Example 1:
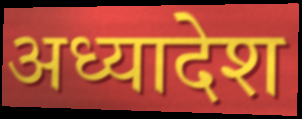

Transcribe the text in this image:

अध्यादेश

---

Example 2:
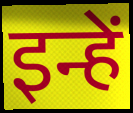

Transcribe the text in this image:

इन्हें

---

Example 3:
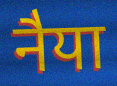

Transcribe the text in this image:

नैया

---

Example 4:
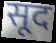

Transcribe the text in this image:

सूद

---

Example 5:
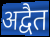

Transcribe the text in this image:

अद्वैत